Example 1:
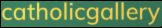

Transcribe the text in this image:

catholicgallery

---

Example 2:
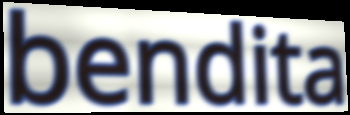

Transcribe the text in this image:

bendita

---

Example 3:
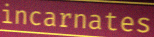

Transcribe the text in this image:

incarnates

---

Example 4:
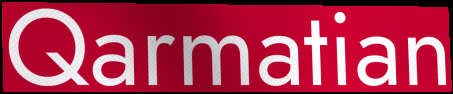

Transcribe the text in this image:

Qarmatian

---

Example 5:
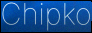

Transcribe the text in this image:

Chipko